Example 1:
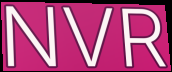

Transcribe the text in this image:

NVR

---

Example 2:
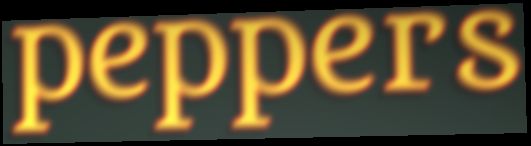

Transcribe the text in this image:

peppers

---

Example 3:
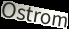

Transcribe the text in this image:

Ostrom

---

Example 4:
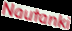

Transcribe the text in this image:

Nautanki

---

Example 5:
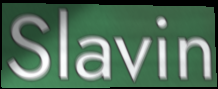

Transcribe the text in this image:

Slavin